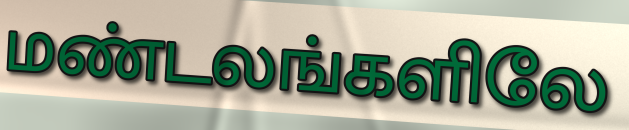
மண்டலங்களிலே